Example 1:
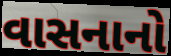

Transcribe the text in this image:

વાસનાનો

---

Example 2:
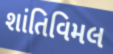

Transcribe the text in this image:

શાંતિવિમલ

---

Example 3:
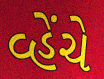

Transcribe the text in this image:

વ્હેંચે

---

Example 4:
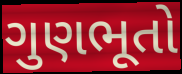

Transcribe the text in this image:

ગુણભૂતો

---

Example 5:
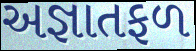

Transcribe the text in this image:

અજ્ઞાતફળ